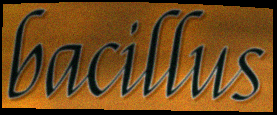
bacillus